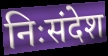
निःसंदेश